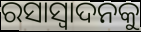
ରସାସ୍ୱାଦନକୁ